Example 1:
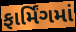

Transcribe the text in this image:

ફાર્મિંગમાં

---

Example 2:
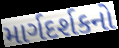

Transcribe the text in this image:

માર્ગદર્શકનો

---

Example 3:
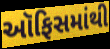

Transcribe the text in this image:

ઑફિસમાંથી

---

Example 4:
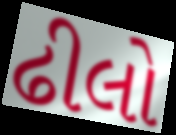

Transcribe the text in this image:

ઢીલો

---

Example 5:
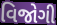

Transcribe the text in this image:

વિજોગી